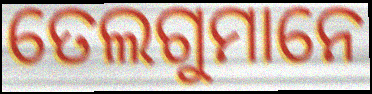
ତେଲଗୁମାନେ